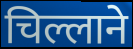
चिल्लाने